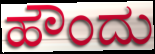
ಹೌಂದು